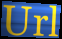
Url